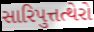
સારિપુત્તત્થેરો